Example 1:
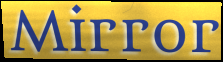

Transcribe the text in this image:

Mirror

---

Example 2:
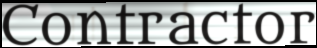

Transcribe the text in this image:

Contractor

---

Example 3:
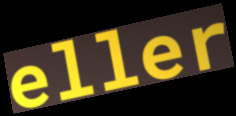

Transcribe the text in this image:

eller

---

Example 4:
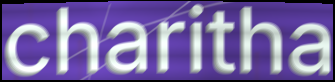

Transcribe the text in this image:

charitha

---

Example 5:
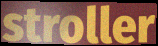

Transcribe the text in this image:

stroller